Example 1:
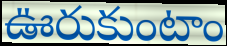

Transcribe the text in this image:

ఊరుకుంటాం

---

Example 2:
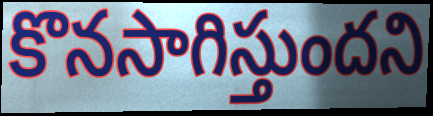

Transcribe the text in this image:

కొనసాగిస్తుందని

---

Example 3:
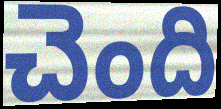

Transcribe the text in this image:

చెంది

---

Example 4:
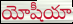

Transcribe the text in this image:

యోషీయా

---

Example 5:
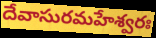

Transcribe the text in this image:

దేవాసురమహేశ్వరః